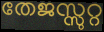
തേജസ്സുറ്റ